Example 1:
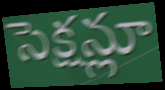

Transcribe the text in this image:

సెక్షన్లూ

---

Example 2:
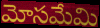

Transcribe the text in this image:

మోసమేమి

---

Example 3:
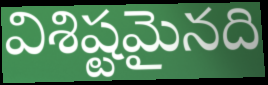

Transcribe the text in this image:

విశిష్టమైనది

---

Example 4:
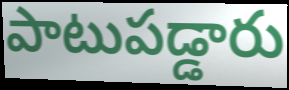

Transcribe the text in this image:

పాటుపడ్డారు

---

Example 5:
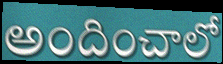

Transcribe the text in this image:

అందించాలో